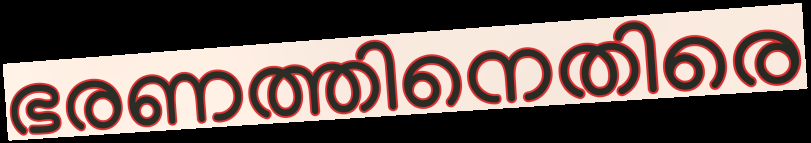
ഭരണത്തിനെതിരെ